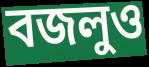
বজলুও